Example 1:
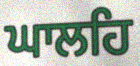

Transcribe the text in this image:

ਘਾਲਹਿ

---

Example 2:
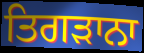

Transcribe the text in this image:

ਤਿਗੜਾਨਾ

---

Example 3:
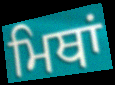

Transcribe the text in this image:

ਮਿਥਾਂ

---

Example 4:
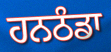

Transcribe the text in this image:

ਹਨਠੰਡਾ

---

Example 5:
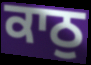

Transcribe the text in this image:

ਕਾਠੁ